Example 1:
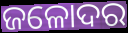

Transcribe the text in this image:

ଜଳୋଦର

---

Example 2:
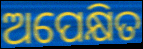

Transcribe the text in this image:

ଅପେକ୍ଷିତ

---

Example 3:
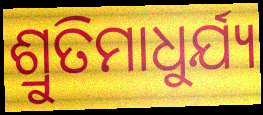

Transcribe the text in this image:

ଶ୍ରୁତିମାଧୁର୍ଯ୍ୟ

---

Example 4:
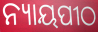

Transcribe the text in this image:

ନ୍ୟାୟପୀଠ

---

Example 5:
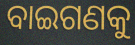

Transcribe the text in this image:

ବାଇଗଣକୁ